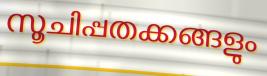
സൂചിപ്പതക്കങ്ങളും